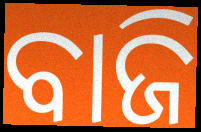
ବାଜି